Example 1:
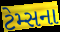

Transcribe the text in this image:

ટેમ્સના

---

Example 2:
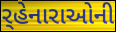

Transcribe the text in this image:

ર્‌હેનારાઓની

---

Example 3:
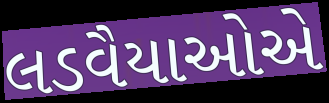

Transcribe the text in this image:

લડવૈયાઓએ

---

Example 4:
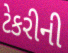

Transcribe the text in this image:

ટેકરીની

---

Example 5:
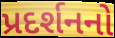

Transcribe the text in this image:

પ્રદર્શનનો